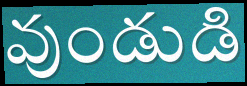
వుండుడి